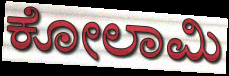
ಕೋಲಾಮಿ